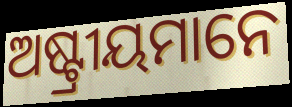
ଅଷ୍ଟ୍ରୀୟମାନେ